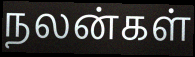
நலன்கள்